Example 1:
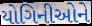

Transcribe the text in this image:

યોગિનીઓને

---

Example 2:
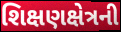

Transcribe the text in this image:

શિક્ષણક્ષેત્રની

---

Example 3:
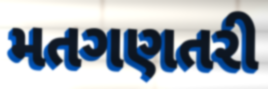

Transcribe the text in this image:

મતગણતરી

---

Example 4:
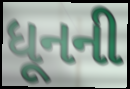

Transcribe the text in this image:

ધૂનની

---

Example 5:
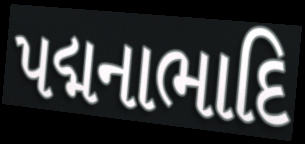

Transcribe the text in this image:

પદ્મનાભાદિ